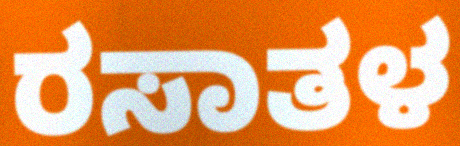
ರಸಾತಳ